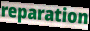
reparation